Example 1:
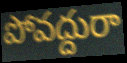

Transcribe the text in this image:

పోవద్దురా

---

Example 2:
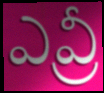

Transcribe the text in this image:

ఎవ్రీ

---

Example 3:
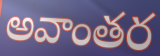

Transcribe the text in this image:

అవాంతర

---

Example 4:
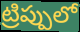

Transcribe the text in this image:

ట్రిప్పులో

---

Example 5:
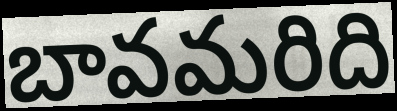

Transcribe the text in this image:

బావమరిది